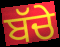
ਬੱਚੇ